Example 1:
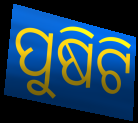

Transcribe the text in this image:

ପୁଷିଟି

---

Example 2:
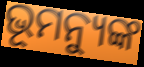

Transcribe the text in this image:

ଭୂମନ୍ୟୁଙ୍କ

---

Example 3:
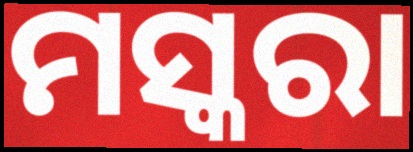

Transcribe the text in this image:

ମସ୍କରା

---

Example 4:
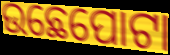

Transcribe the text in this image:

ଉଛେପୋଟା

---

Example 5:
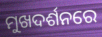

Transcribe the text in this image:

ମୁଖଦର୍ଶନରେ